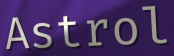
Astrol